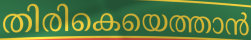
തിരികെയെത്താൻ